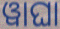
ୱାଘା